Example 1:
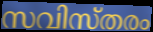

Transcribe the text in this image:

സവിസ്തരം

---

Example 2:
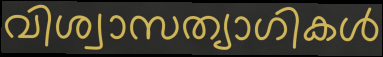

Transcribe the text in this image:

വിശ്വാസത്യാഗികൾ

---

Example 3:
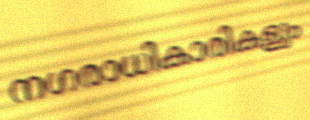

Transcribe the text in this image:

നഗരാധികാരികളും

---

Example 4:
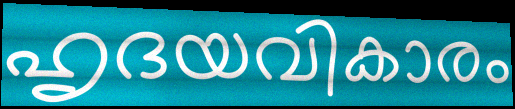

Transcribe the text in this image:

ഹൃദയവികാരം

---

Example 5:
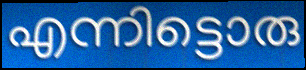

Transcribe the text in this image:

എന്നിട്ടൊരു